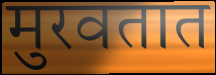
मुरवतात